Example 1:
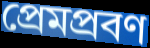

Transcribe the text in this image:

প্রেমপ্রবণ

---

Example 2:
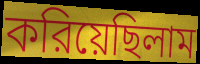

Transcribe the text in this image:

করিয়েছিলাম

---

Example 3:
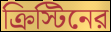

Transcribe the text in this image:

ক্রিস্টিনের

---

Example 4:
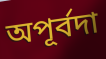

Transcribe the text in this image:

অপূর্বদা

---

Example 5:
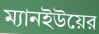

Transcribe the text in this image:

ম্যানইউয়ের